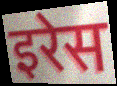
इरेस